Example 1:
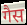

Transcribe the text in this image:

गैस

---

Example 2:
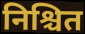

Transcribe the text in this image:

निश्चित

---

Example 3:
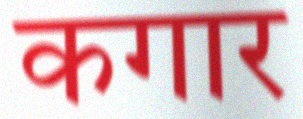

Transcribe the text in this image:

कगार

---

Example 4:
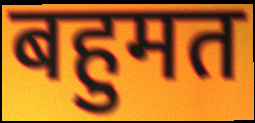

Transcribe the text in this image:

बहुमत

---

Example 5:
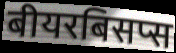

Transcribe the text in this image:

बीयरबिसप्स